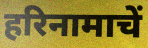
हरिनामाचें